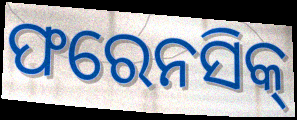
ଫରେନସିକ୍